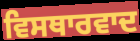
ਵਿਸਥਾਰਵਾਦ